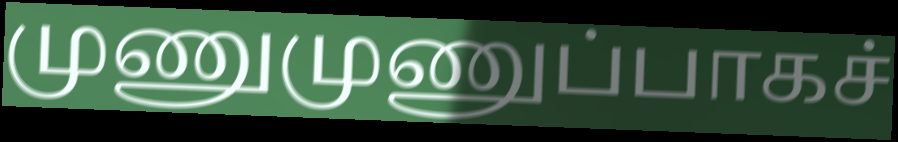
முணுமுணுப்பாகச்